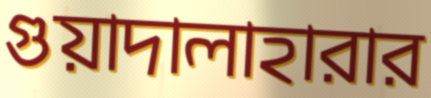
গুয়াদালাহারার